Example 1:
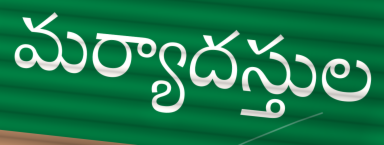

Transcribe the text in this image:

మర్యాదస్తుల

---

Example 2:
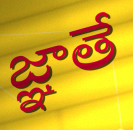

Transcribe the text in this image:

జ్ఞాతే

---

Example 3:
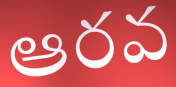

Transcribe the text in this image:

ఆరవ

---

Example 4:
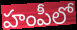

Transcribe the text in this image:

హంపీలో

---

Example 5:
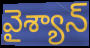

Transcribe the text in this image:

వైశ్యాన్